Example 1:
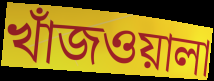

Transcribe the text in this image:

খাঁজওয়ালা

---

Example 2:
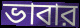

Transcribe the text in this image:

ভাবার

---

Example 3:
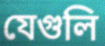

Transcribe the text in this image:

যেগুলি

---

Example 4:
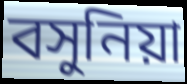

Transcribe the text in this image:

বসুনিয়া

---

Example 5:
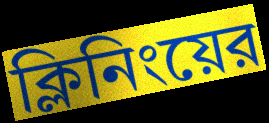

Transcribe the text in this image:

ক্লিনিংয়ের